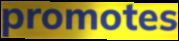
promotes